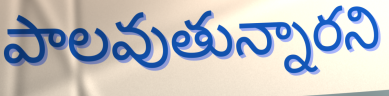
పాలవుతున్నారని